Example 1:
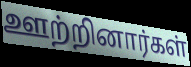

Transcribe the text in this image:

ஊற்றினார்கள்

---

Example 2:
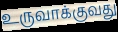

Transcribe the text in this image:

உருவாக்குவது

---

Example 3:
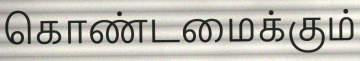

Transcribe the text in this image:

கொண்டமைக்கும்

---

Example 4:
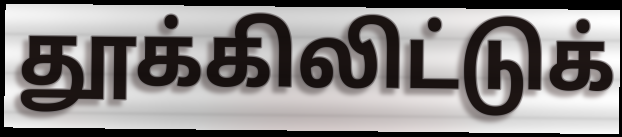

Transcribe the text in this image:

தூக்கிலிட்டுக்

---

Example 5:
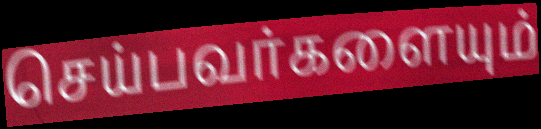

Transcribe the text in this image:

செய்பவர்களையும்